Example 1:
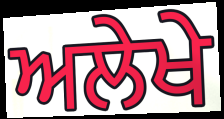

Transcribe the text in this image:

ਅਲੇਖੇ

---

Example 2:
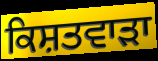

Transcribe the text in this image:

ਕਿਸ਼ਤਵਾੜਾ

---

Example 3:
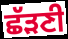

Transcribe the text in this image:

ਛੱੜਣੀ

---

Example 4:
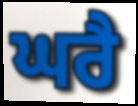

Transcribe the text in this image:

ਘਰੈ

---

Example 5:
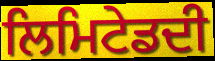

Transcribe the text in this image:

ਲਿਮਿਟੇਡਦੀ